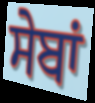
ਸੇਬਾਂ